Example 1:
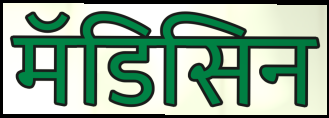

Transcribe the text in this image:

मॅडिसिन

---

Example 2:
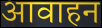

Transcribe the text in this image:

आवाहन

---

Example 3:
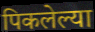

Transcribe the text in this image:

पिकलेल्या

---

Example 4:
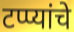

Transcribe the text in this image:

टप्प्यांचे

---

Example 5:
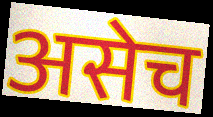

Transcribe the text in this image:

असेच